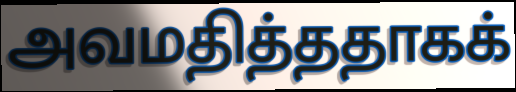
அவமதித்ததாகக்